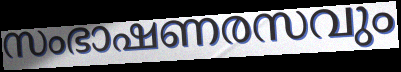
സംഭാഷണരസവും